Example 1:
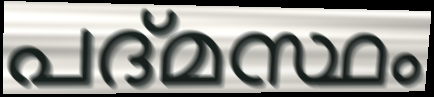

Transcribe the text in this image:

പദ്മസ്ഥം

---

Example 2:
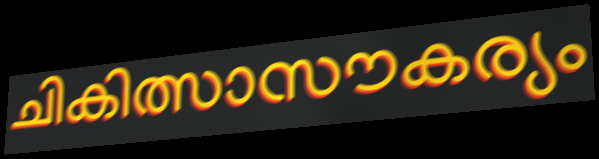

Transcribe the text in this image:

ചികിത്സാസൗകര്യം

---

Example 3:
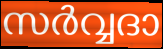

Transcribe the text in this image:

സർവ്വദാ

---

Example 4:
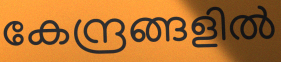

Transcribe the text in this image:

കേന്ദ്രങ്ങളിൽ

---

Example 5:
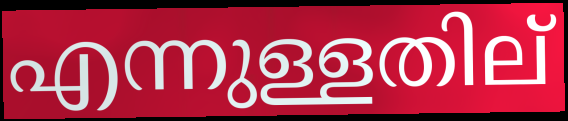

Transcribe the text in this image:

എന്നുള്ളതില്